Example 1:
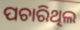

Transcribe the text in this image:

ପଚାରିଥିଲ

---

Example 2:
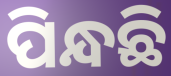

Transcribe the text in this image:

ପିନ୍ଧଛି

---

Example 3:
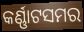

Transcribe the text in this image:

କର୍ଣ୍ଣାଟସମର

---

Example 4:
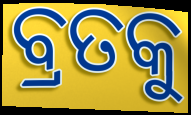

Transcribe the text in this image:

ବ୍ରତକୁ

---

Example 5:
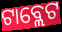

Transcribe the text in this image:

ଟାବ୍ଲେଟ